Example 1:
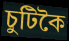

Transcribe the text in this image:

চুটিকৈ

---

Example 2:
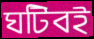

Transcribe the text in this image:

ঘটিবই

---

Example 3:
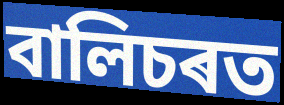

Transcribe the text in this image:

বালিচৰত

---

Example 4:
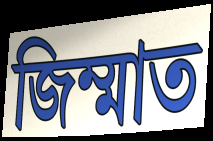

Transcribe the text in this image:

জিম্মাত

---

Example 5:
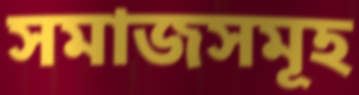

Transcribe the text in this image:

সমাজসমূহ